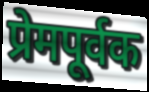
प्रेमपूर्वक